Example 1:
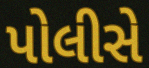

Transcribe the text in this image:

પોલીસે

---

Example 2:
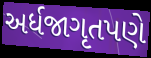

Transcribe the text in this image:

અર્ધજાગૃતપણે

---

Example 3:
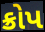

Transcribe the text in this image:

ક્રોપ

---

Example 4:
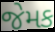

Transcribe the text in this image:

જેમક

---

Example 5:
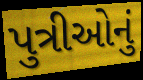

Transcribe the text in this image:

પુત્રીઓનું